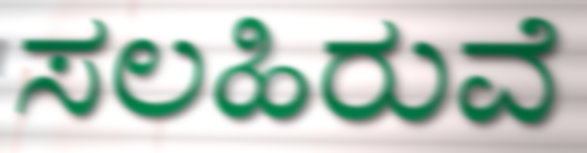
ಸಲಹಿರುವೆ